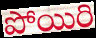
పోయిరి